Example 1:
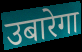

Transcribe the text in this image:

उबारेगा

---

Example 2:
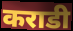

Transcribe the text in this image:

कराडी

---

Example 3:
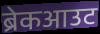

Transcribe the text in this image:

ब्रेकआउट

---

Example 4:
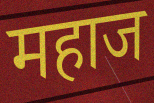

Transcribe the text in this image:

महाज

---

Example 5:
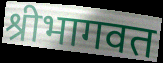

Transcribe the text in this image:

श्रीभागवत